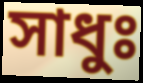
সাধুঃ